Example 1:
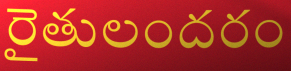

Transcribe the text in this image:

రైతులందరం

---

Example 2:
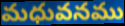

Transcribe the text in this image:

మధువనము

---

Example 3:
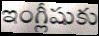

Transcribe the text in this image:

ఇంగ్లీషుకు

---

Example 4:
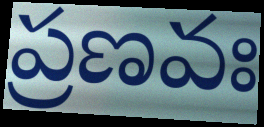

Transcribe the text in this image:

ప్రణవః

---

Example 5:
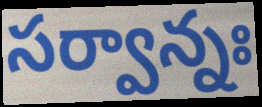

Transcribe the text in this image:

సర్వాన్నః